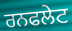
ਰਨਫਲੇਟ